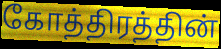
கோத்திரத்தின்